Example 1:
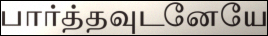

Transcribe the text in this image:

பார்த்தவுடனேயே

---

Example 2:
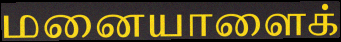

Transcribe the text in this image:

மனையாளைக்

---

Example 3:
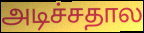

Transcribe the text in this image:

அடிச்சதால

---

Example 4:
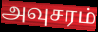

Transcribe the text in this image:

அவுசரம்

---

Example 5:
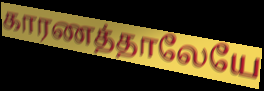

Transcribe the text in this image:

காரணத்தாலேயே